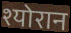
श्योरान